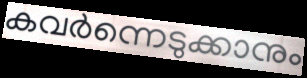
കവർന്നെടുക്കാനും